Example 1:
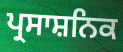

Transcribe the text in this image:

ਪ੍ਰਸਾਸ਼ਨਿਕ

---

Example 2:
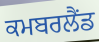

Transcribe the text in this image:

ਕਮਬਰਲੈਂਡ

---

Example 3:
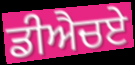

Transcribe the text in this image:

ਡੀਐਚਏ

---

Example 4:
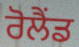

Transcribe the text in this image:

ਰੋਲੈਂਡ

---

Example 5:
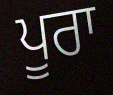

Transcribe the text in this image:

ਪੂਰਾ